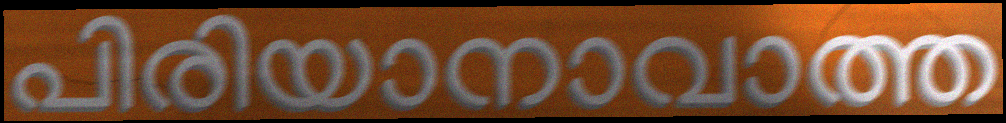
പിരിയാനാവാത്ത